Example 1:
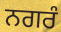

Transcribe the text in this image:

ਨਗਰੰ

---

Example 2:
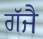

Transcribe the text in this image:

ਗੱਜੈ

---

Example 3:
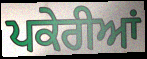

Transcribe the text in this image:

ਪਕੇਰੀਆਂ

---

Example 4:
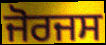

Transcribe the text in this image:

ਜੋਰਜਸ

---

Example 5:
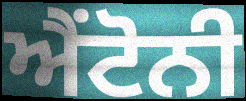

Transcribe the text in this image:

ਐਂਟੋਨੀ